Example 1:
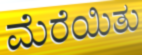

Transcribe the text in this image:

ಮೆರೆಯಿತು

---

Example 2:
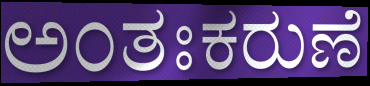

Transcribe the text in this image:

ಅಂತಃಕರುಣೆ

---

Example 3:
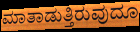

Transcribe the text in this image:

ಮಾತಾಡುತ್ತಿರುವುದೂ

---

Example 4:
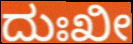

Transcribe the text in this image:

ದುಃಖೀ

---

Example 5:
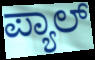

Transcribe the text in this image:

ಪ್ಯಾಲ್